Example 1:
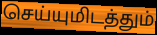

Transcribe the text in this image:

செய்யுமிடத்தும்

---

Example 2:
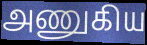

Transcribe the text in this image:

அணுகிய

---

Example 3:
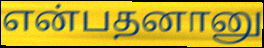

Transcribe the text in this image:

என்பதனானு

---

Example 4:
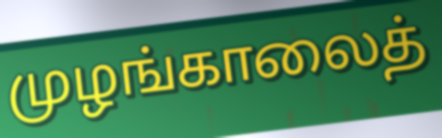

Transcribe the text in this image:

முழங்காலைத்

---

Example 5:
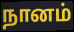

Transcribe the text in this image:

நானம்